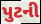
પુટની